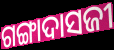
ଗଙ୍ଗାଦାସଜୀ